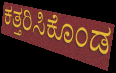
ಕತ್ತರಿಸಿಕೊಂಡ